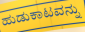
ಹುಡುಕಾಟವನ್ನು